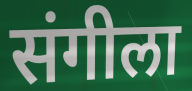
संगीला